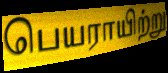
பெயராயிற்று